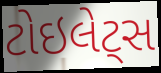
ટોઇલેટ્સ